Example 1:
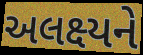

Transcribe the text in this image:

અલક્ષ્યને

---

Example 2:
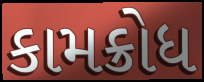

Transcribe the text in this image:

કામક્રોધ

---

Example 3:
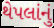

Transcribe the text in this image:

થેપલાંનું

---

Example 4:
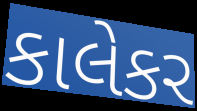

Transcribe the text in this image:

કાલેકર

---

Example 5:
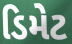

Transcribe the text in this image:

ડિમેટ